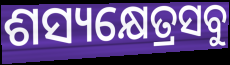
ଶସ୍ୟକ୍ଷେତ୍ରସବୁ